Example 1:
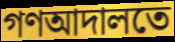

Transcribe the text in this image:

গণআদালতে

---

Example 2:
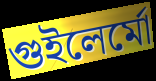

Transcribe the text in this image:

গুইলের্মো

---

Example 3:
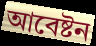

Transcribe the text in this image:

আবেষ্টন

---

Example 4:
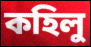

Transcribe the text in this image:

কহিলু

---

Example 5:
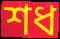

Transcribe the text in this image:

শধ